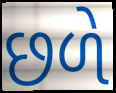
છળે